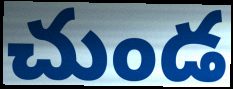
చుండ